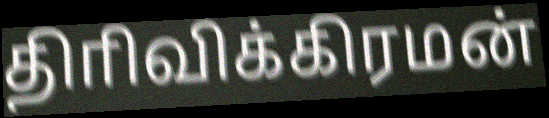
திரிவிக்கிரமன்